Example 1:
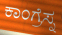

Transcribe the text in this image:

ಕಾಂಗ್ರೆಸ್ನ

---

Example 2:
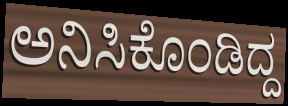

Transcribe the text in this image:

ಅನಿಸಿಕೊಂಡಿದ್ದ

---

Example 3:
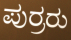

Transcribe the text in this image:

ಪುರ್ರರು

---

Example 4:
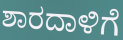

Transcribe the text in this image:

ಶಾರದಾಳಿಗೆ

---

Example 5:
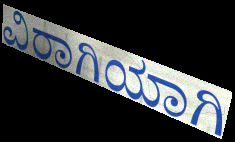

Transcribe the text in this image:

ವಿರಾಗಿಯಾಗಿ